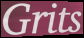
Grits